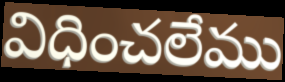
విధించలేము